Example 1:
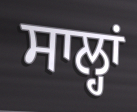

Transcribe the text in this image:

ਸਾਲ੍ਹਾਂ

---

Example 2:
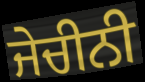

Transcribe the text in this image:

ਜੇਚੀਨੀ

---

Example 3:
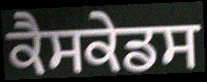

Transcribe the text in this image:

ਕੈਸਕੇਡਸ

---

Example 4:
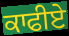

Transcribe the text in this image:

ਕਾਫੀਏ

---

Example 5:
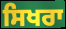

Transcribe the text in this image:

ਸਿਖਰਾ